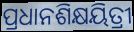
ପ୍ରଧାନଶିକ୍ଷୟିତ୍ରୀ